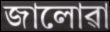
জালোৱা